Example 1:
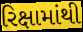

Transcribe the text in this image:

રિક્ષામાંથી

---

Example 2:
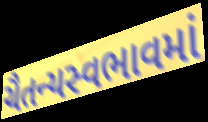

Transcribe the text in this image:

ચૈતન્યસ્વભાવમાં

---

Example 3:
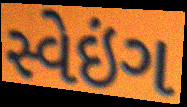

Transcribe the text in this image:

સ્વેઇંગ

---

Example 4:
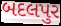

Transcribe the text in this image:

બદલપુર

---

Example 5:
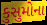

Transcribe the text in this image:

કુસુમોના